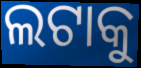
ଲଟାକୁ